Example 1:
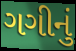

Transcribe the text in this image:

ગગીનું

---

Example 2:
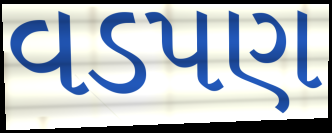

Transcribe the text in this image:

વડપણ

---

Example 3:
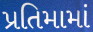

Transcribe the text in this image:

પ્રતિમામાં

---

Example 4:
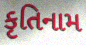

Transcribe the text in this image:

કૃતિનામ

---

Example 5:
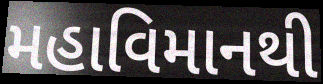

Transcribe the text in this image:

મહાવિમાનથી